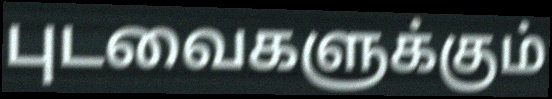
புடவைகளுக்கும்